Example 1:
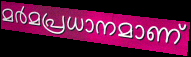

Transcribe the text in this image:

മർമപ്രധാനമാണ്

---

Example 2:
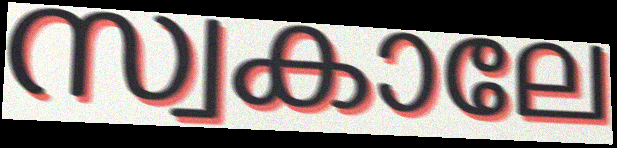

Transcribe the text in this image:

സ്വകാലേ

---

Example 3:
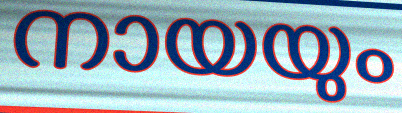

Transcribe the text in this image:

നായയും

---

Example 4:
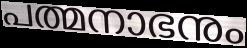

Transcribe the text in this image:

പത്മനാഭനും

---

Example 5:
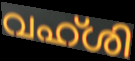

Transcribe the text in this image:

വഹ്ശി